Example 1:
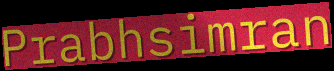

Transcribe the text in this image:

Prabhsimran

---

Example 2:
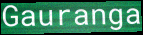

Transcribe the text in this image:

Gauranga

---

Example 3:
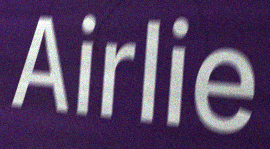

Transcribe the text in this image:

Airlie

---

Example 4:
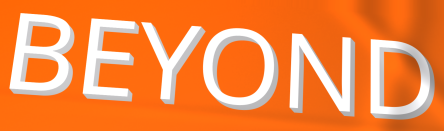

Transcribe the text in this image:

BEYOND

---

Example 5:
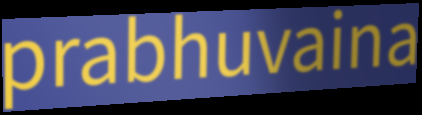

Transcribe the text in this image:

prabhuvaina